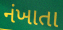
નંખાતા